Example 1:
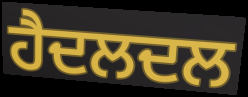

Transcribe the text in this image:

ਹੈਦਲਦਲ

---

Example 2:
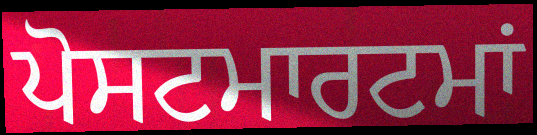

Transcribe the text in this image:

ਪੋਸਟਮਾਰਟਮਾਂ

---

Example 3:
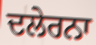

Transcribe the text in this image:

ਦਲੇਰਨਾ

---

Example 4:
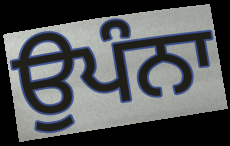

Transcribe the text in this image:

ਉਪੰਨਾ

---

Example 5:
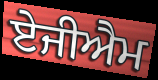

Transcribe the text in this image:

ਏਜੀਐਮ